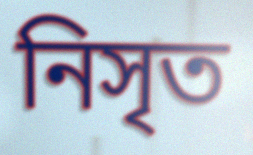
নিসৃত